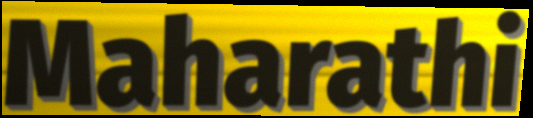
Maharathi